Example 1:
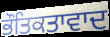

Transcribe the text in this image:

ਭੌਤਿਕਤਾਵਾਦ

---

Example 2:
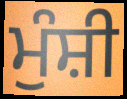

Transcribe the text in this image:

ਮੁੰਸ਼ੀ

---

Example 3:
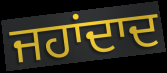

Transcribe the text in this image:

ਜਹਾਂਦਾਦ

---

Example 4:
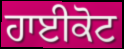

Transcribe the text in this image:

ਹਾਈਕੋਟ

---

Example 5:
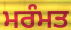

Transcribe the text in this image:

ਮਰੰਮਤ